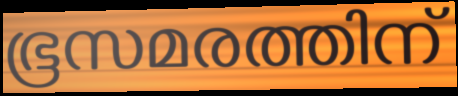
ഭൂസമരത്തിന്